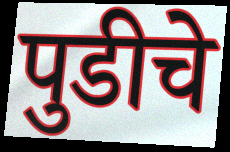
पुडीचे